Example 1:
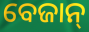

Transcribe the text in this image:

ବେଜାନ୍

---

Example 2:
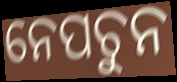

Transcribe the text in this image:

ନେପଚୁନ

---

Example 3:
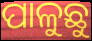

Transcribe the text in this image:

ପାଳୁଛୁ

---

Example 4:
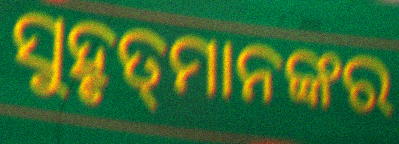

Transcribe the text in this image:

ସୁହୃତ୍‌ମାନଙ୍କର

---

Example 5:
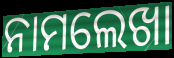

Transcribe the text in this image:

ନାମଲେଖା